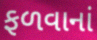
ફળવાનાં